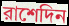
রাশেদিন